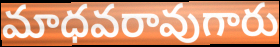
మాధవరావుగారు